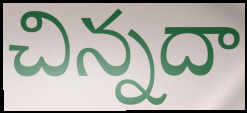
చిన్నదా